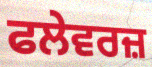
ਫਲੇਵਰਜ਼